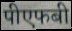
पीएफबी